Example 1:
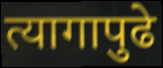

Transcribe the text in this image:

त्यागापुढे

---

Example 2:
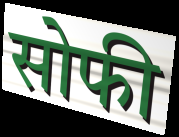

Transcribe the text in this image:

सोफी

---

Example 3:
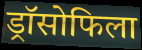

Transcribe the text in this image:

ड्रॉसोफिला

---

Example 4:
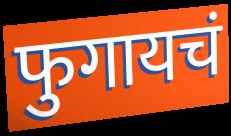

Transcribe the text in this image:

फुगायचं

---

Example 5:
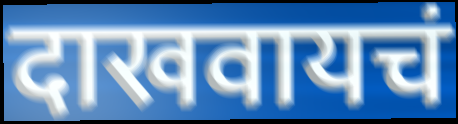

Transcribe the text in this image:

दाखवायचं